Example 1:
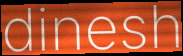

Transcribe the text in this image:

dinesh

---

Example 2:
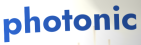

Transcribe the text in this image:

photonic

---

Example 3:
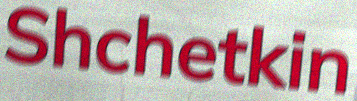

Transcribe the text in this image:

Shchetkin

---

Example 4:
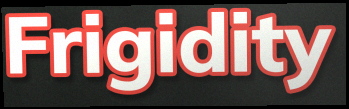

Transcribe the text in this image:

Frigidity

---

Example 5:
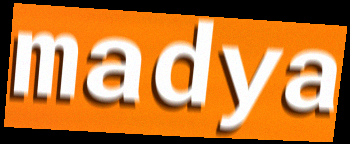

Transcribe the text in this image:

madya